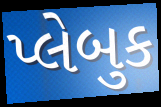
પ્લેબુક